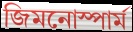
জিমনোস্পার্ম